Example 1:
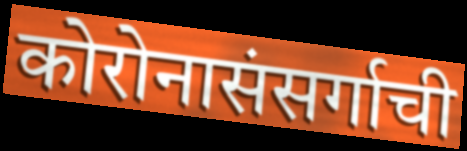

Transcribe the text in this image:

कोरोनासंसर्गाची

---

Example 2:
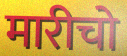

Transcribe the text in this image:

मारीचो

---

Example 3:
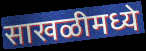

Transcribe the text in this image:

साखळीमध्ये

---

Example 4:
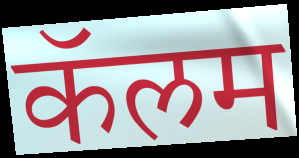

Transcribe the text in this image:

कॅलम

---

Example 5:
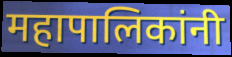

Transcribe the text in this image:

महापालिकांनी